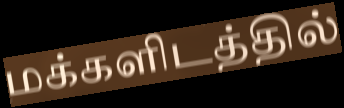
மக்களிடத்தில்